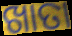
ଖାତା